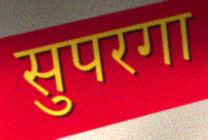
सुपरगा